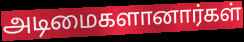
அடிமைகளானார்கள்